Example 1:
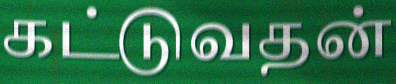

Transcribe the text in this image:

கட்டுவதன்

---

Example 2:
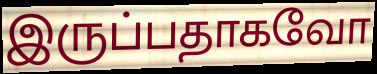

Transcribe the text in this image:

இருப்பதாகவோ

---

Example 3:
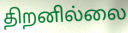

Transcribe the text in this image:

திறனில்லை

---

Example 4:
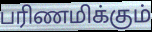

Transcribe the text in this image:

பரிணமிக்கும்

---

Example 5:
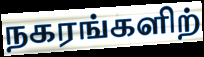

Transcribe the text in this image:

நகரங்களிற்